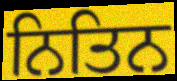
ਨਿਤਿਨ